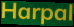
Harpal